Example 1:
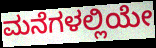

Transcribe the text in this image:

ಮನೆಗಳಲ್ಲಿಯೇ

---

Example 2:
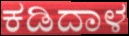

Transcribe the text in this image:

ಕಡಿದಾಳ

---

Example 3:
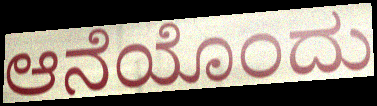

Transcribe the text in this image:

ಆನೆಯೊಂದು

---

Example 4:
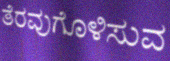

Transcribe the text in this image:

ತೆರವುಗೊಳಿಸುವ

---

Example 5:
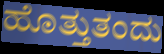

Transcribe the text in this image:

ಹೊತ್ತುತಂದು